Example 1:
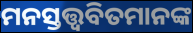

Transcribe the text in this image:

ମନସ୍ତତ୍ତ୍ୱବିତମାନଙ୍କ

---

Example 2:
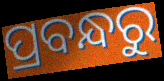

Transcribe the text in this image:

ପ୍ରବନ୍ଧରୁ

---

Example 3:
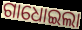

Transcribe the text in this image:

ଗାଧୋଇଲା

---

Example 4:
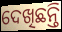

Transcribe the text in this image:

ଦେଖିଛନ୍ତି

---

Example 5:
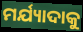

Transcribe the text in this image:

ମର୍ଯ୍ୟାଦାକୁ